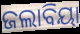
ଜଲାବିୟା